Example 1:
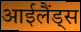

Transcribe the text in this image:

आईलैंड्स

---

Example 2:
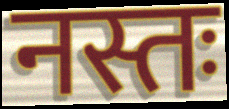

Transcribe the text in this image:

नस्तः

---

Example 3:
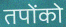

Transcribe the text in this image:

तपोंको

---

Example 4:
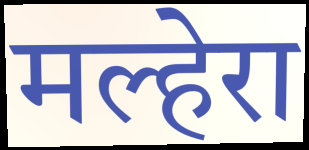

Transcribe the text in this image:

मल्हेरा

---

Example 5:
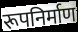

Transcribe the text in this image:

रूपनिर्माण